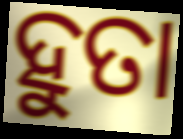
ହୁତା